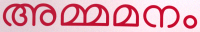
അമ്മമനം